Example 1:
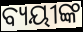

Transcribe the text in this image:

ବ୍ୟୟୀଙ୍କ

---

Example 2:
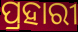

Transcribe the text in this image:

ପ୍ରହାରୀ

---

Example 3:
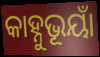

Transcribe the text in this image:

କାହ୍ନୁଭୂୟାଁ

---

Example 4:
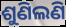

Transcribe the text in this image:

ଶୁଣିଲଣି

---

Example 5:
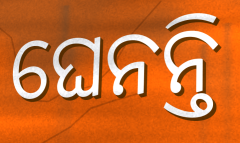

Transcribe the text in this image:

ଘେନନ୍ତି